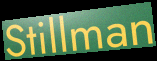
Stillman